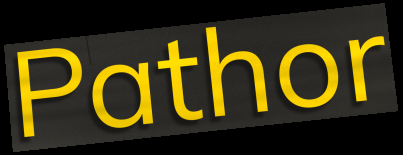
Pathor